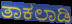
ತಾಕಲಾಡಿ